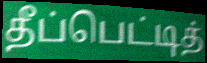
தீப்பெட்டித்